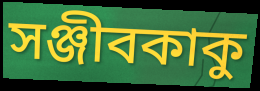
সঞ্জীবকাকু